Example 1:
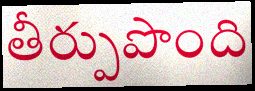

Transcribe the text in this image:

తీర్పుపొంది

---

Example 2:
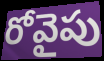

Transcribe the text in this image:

రోవైపు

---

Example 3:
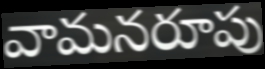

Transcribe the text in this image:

వామనరూపు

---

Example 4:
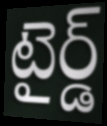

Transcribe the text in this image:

టైర్డ్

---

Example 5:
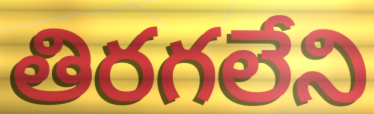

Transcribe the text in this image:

తిరగలేని